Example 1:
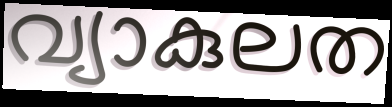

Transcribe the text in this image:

വ്യാകുലത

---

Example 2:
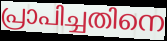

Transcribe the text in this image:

പ്രാപിച്ചതിനെ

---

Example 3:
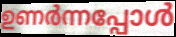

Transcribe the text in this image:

ഉണർന്നപ്പോൾ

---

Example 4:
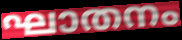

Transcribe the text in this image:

ഘാതനം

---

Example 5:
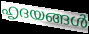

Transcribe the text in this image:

ഹൃദയങ്ങൾ